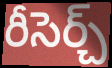
రీసెర్చ్